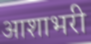
आशाभरी